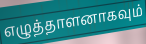
எழுத்தாளனாகவும்